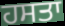
ਹਸਤਾ